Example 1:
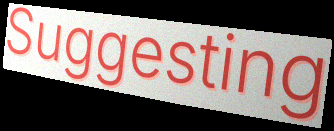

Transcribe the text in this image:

Suggesting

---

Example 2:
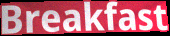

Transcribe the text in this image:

Breakfast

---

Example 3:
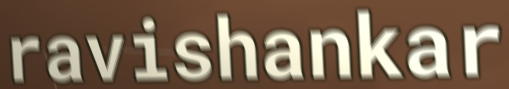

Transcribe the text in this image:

ravishankar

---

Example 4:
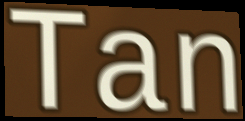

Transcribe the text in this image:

Tan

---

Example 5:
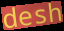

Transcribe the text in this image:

desh